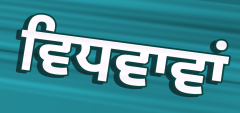
ਵਿਧਵਾਵਾਂ